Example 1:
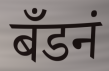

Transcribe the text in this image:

बँडनं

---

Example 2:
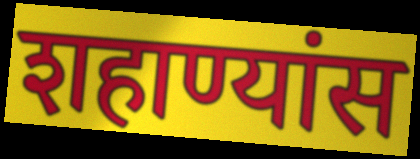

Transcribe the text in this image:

शहाण्यांस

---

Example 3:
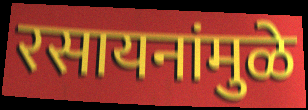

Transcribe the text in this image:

रसायनांमुळे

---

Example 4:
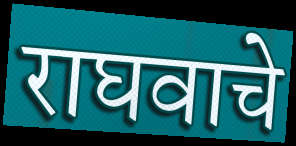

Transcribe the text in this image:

राघवाचे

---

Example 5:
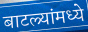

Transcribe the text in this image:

बाटल्यांमध्ये